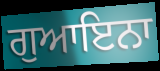
ਗੁਆਇਨਾ